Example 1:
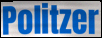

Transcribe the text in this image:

Politzer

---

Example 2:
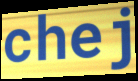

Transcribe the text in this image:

chej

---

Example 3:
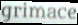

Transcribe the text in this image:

grimace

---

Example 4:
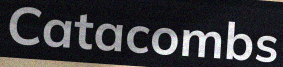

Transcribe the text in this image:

Catacombs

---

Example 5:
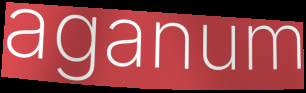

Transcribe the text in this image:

aganum